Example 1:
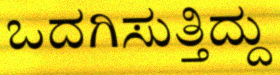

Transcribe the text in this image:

ಒದಗಿಸುತ್ತಿದ್ದು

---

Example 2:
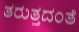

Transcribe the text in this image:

ತರುತ್ತದಂತೆ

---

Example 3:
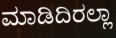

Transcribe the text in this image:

ಮಾಡಿದಿರಲ್ಲಾ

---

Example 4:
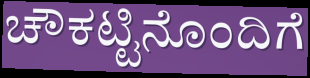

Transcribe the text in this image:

ಚೌಕಟ್ಟಿನೊಂದಿಗೆ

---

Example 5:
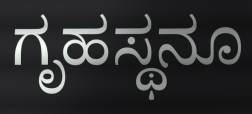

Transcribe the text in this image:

ಗೃಹಸ್ಥನೂ